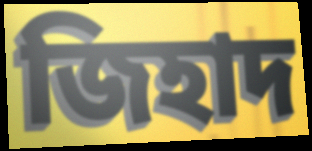
জিহাদ